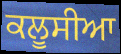
ਕਲੂਸੀਆ